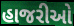
હાજરીઓ